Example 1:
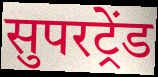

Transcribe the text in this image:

सुपरट्रेंड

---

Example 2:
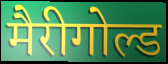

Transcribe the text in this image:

मैरीगोल्ड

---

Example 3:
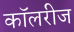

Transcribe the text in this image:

कॉलरीज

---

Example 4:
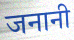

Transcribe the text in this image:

जनानी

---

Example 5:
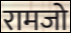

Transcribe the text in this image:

रामजो